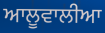
ਆਲੂਵਾਲੀਆ